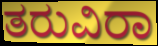
ತರುವಿರಾ